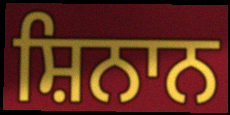
ਸ਼ਿਨਾਨ